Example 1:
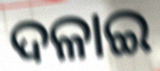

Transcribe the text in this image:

ଦଳାଇ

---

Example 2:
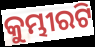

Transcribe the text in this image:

କୁମ୍ଭୀରଟି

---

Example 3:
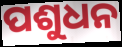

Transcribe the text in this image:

ପଶୁଧନ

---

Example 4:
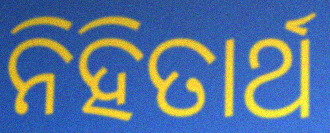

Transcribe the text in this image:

ନିହିତାର୍ଥ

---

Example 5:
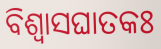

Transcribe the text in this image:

ବିଶ୍ୱାସଘାତକଃ